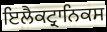
ਇਲੈਕਟ੍ਰਾਨਿਕਸ